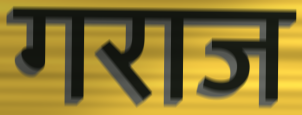
गराज